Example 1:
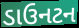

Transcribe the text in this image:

ડાઉનટન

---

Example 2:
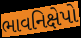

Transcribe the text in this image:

ભાવનિક્ષેપો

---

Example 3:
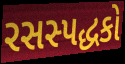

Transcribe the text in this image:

રસસ્પદ્ધકો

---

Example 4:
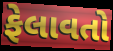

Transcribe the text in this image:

ફેલાવતો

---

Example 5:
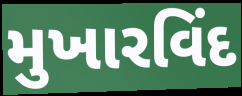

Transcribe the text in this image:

મુખારવિંદ